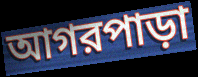
আগরপাড়া